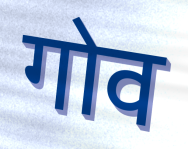
गोव